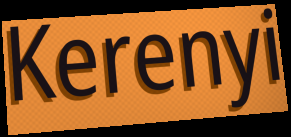
Kerenyi